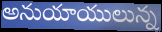
అనుయాయులున్న